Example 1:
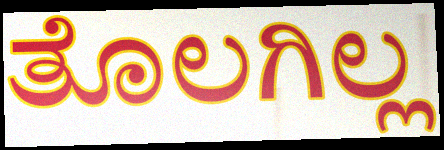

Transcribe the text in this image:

ತೊಲಗಿಲ್ಲ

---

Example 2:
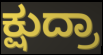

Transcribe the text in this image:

ಕ್ಷುದ್ರಾ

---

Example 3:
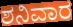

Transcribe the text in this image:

ಶನಿವಾರ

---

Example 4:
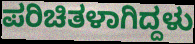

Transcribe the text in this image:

ಪರಿಚಿತಳಾಗಿದ್ದಳು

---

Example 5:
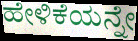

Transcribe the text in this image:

ಹೇಳಿಕೆಯನ್ನೇ